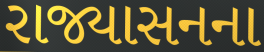
રાજ્યાસનના